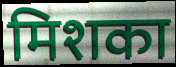
मिशका